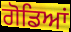
ਗੋਡਿਆਂ